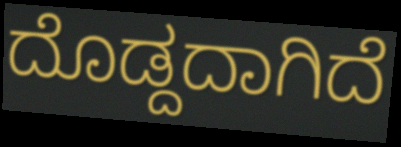
ದೊಡ್ದದಾಗಿದೆ